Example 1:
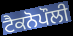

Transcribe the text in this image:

ਟੈਕਨੋਪੌਲੀ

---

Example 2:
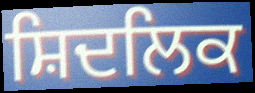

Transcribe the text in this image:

ਸ਼ਿਦਲਿਕ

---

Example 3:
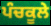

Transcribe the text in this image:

ਪੰਚਕੂਲੇ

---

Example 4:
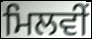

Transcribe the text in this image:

ਮਿਲਵੀਂ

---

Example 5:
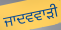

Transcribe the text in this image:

ਜਾਦਵਵਾੜੀ